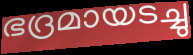
ഭദ്രമായടച്ചു